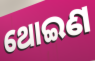
ଥୋଇଣ